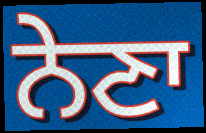
ਨੇਣਾ